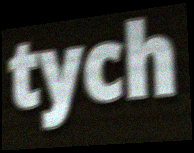
tych